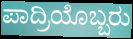
ಪಾದ್ರಿಯೊಬ್ಬರು